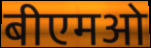
बीएमओ